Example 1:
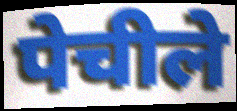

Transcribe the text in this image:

पेचीले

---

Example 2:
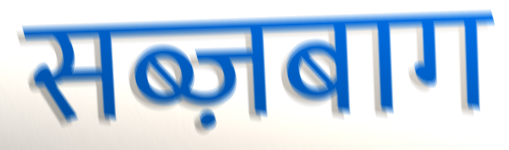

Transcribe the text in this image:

सब्ज़बाग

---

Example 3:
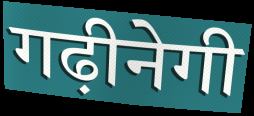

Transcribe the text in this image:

गढ़ीनेगी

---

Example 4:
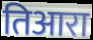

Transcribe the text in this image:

तिआरा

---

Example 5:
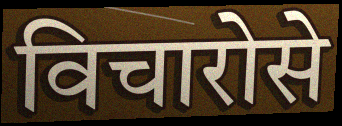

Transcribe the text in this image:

विचारोसे